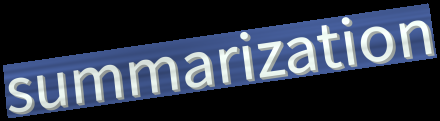
summarization